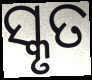
ସ୍କୃତ